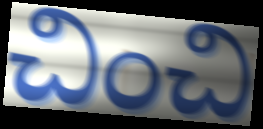
చించి